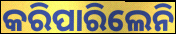
କରିପାରିଲେନି